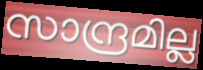
സാന്ദ്രമില്ല